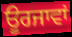
ਊਰਜਾਵਾਂ